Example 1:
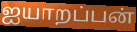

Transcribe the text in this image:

ஐயாறப்பன்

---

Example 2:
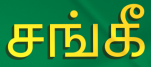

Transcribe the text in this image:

சங்கீ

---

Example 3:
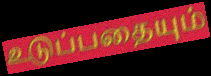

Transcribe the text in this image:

உடுப்பதையும்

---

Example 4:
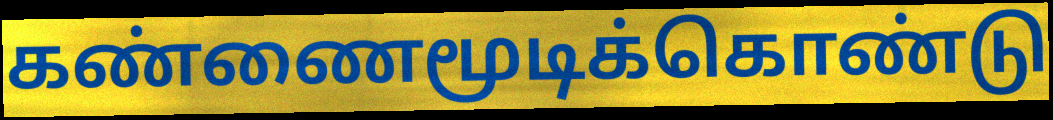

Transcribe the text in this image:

கண்ணைமூடிக்கொண்டு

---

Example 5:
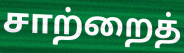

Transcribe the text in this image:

சாற்றைத்